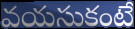
వయసుకంటే